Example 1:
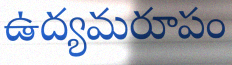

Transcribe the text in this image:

ఉద్యమరూపం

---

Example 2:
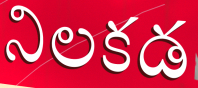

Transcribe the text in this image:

నిలకడ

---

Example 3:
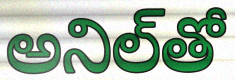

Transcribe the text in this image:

అనిల్‌తో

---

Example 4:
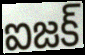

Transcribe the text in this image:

ఐజక్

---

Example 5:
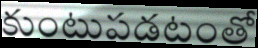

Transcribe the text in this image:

కుంటుపడటంతో